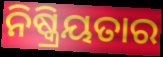
ନିଷ୍କ୍ରିୟତାର